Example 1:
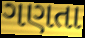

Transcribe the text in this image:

ગણતા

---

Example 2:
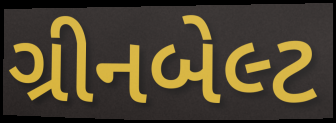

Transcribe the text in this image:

ગ્રીનબેલ્ટ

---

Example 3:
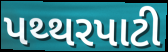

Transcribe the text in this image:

પથ્થરપાટી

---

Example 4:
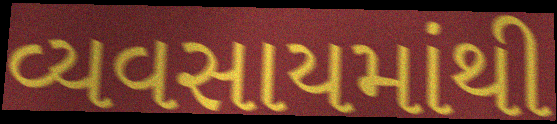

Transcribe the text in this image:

વ્યવસાયમાંથી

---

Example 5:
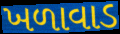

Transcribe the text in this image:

ખળાવાડ